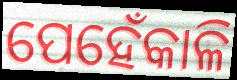
ପେହେଁକାଳି